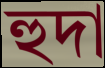
হুদা